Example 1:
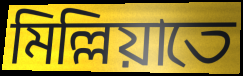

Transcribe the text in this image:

মিল্লিয়াতে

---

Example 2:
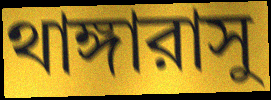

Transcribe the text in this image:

থাঙ্গারাসু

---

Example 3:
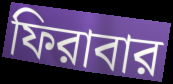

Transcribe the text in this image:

ফিরাবার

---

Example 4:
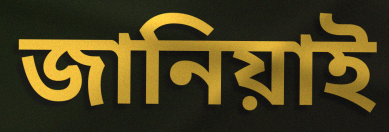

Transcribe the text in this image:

জানিয়াই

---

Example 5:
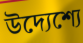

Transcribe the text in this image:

উদ্যেশ্যে